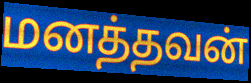
மனத்தவன்